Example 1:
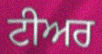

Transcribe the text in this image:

ਟੀਅਰ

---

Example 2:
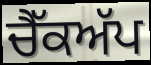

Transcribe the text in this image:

ਚੈੱਕਅੱਪ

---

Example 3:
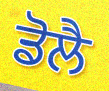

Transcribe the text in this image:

ਡੋਲੈ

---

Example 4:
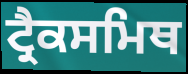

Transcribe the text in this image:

ਟ੍ਰੈਕਸਮਿਥ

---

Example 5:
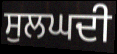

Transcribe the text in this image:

ਸੁਲਘਦੀ